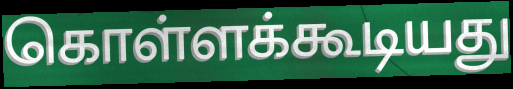
கொள்ளக்கூடியது